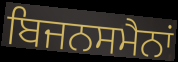
ਬਿਜਨਸਮੈਨਾਂ